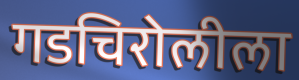
गडचिरोलीला